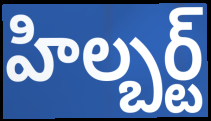
హిల్బర్ట్